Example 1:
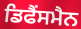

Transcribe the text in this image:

ਡਿਫੈਂਸਮੈਨ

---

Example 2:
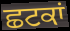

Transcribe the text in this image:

ਛਟਕਾਂ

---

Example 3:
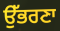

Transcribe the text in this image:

ਉੱਭਰਣਾ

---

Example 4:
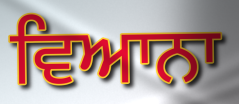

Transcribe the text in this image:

ਵਿਆਨਾ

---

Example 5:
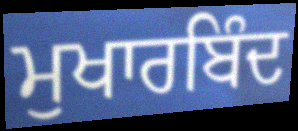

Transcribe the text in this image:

ਮੁਖਾਰਬਿੰਦ